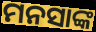
ମନସାଙ୍କ